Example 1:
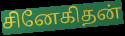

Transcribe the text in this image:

சினேகிதன்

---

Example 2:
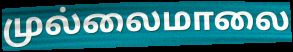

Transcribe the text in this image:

முல்லைமாலை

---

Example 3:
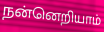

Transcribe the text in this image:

நன்னெறியாம்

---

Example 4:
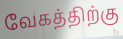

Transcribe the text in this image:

வேகத்திற்கு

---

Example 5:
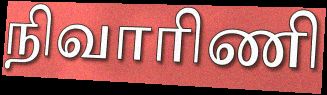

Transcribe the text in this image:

நிவாரிணி